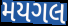
મયગલ